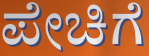
ಪೇಚಿಗೆ